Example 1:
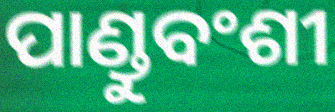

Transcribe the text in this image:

ପାଣ୍ଡୁବଂଶୀ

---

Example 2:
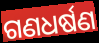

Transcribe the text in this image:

ଗଣଧର୍ଷଣ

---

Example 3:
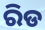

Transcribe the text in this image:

ରିଡ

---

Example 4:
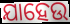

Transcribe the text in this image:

ଯାହେଉ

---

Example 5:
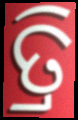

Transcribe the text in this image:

ତ୍ରି